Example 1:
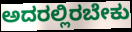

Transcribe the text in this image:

ಅದರಲ್ಲಿರಬೇಕು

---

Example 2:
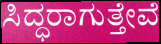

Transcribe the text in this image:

ಸಿದ್ಧರಾಗುತ್ತೇವೆ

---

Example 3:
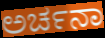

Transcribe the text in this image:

ಅರ್ಚನಾ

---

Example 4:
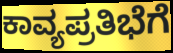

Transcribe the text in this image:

ಕಾವ್ಯಪ್ರತಿಭೆಗೆ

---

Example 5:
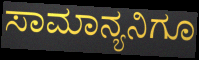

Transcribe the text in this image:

ಸಾಮಾನ್ಯನಿಗೂ